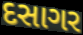
દસાગર